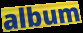
album